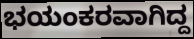
ಭಯಂಕರವಾಗಿದ್ದ